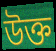
উক্ত